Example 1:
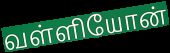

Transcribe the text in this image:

வள்ளியோன்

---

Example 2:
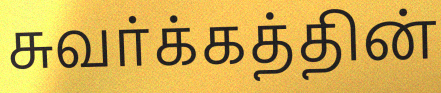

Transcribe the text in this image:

சுவர்க்கத்தின்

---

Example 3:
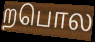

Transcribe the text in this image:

றபொல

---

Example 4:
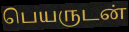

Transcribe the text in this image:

பெயருடன்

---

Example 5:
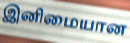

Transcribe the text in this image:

இனிமையான